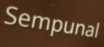
Sempunal